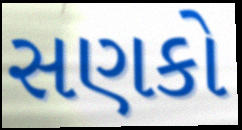
સણકો